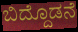
ಬಿದ್ದೊಡನೆ